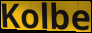
Kolbe